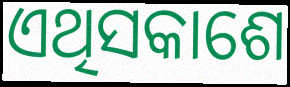
ଏଥିସକାଶେ